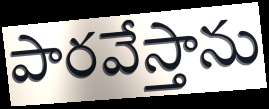
పారవేస్తాను